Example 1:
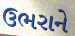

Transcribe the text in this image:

ઉભરાને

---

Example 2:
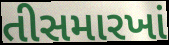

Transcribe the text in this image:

તીસમારખાં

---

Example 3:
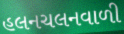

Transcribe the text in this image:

હલનચલનવાળી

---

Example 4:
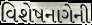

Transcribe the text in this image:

વિશેષનાગેની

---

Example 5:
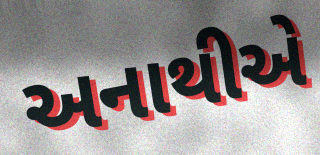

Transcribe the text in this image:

અનાથીએ